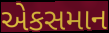
એકસમાન